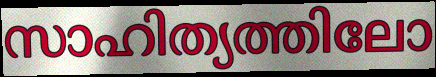
സാഹിത്യത്തിലോ